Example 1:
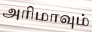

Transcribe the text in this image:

அரிமாவும்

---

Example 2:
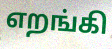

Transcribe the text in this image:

எறங்கி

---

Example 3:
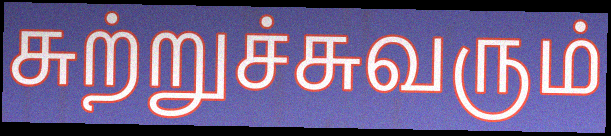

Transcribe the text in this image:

சுற்றுச்சுவரும்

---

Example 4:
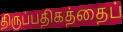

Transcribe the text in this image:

திருப்பதிகத்தைப்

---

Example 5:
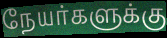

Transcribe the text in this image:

நேயர்களுக்கு